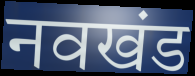
नवखंड